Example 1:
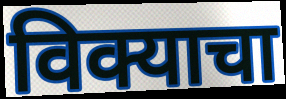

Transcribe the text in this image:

विक्याचा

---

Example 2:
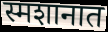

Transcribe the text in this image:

स्मशानात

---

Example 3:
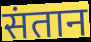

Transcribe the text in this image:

संतान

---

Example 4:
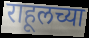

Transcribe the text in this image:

राहूलच्या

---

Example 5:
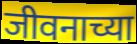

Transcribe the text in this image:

जीवनाच्या